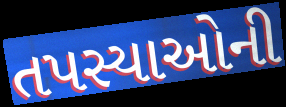
તપસ્યાઓની